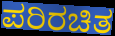
ಪರಿರಚಿತ